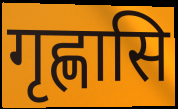
गृह्णासि